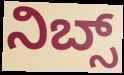
ನಿಬ್ಸ್